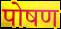
पोषण